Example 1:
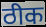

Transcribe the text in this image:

ठीक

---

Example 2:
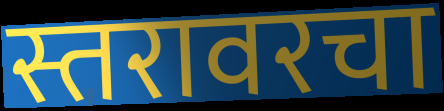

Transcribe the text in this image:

स्तरावरचा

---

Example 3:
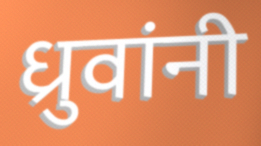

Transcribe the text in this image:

ध्रुवांनी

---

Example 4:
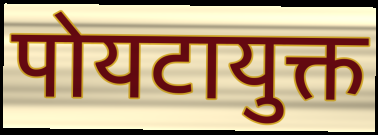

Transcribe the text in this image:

पोयटायुक्त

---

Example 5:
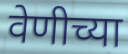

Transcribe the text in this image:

वेणीच्या